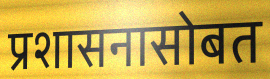
प्रशासनासोबत